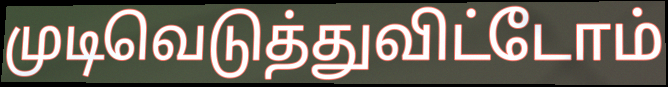
முடிவெடுத்துவிட்டோம்